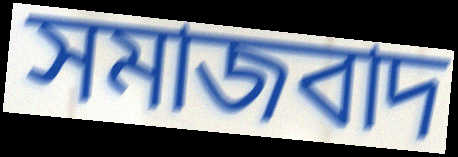
সমাজবাদ